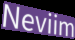
Neviim